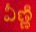
వీణ్ణి